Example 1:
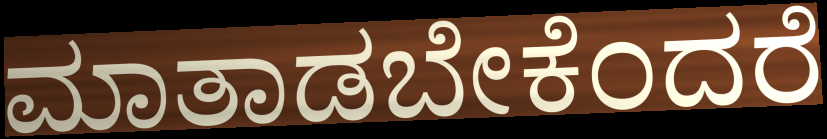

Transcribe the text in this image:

ಮಾತಾಡಬೇಕೆಂದರೆ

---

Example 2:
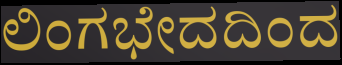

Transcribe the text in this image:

ಲಿಂಗಭೇದದಿಂದ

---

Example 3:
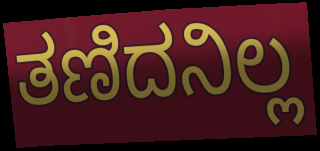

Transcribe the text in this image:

ತಣಿದನಿಲ್ಲ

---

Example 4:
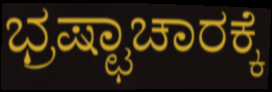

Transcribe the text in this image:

ಭ್ರಷ್ಟಾಚಾರಕ್ಕೆ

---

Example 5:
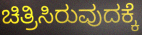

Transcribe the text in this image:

ಚಿತ್ರಿಸಿರುವುದಕ್ಕೆ